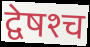
द्वेषश्च